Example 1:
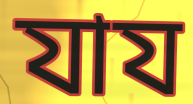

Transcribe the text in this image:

যায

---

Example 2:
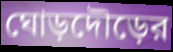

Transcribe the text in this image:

ঘোড়দৌড়ের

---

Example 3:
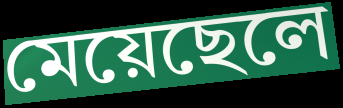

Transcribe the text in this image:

মেয়েছেলে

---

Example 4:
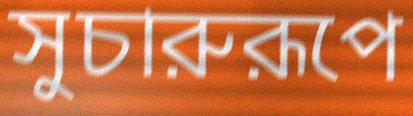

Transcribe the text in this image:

সুচারুরূপে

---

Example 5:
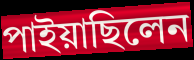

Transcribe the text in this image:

পাইয়াছিলেন